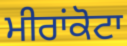
ਮੀਰਾਂਕੋਟਾ